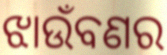
ଝାଉଁବଣର